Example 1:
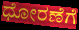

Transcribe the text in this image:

ಧೋರಣೆಗೆ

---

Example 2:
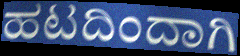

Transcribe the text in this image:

ಹಟದಿಂದಾಗಿ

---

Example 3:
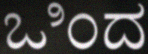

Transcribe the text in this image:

ಒಿಂದ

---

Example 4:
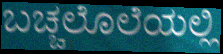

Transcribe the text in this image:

ಬಚ್ಚಲೊಲೆಯಲ್ಲಿ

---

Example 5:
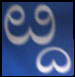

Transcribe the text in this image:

ೞ್ದ